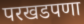
परखडपणा